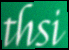
thsi